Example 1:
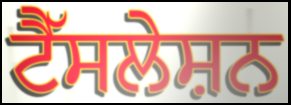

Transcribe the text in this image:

ਟੈੱਸਲੇਸ਼ਨ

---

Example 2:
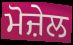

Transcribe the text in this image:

ਮੋਜ਼ੇਲ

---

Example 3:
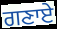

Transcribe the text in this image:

ਗਣਾਏ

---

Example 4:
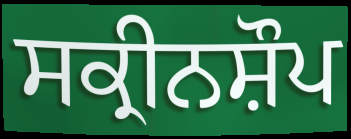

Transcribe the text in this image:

ਸਕ੍ਰੀਨਸ਼ੌਪ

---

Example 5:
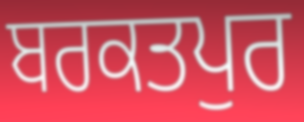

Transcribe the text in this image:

ਬਰਕਤਪੁਰ